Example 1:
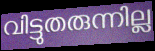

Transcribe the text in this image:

വിട്ടുതരുന്നില്ല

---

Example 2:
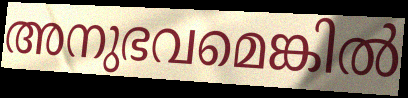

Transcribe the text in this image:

അനുഭവമെങ്കിൽ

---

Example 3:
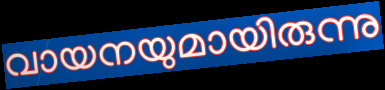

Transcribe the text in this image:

വായനയുമായിരുന്നു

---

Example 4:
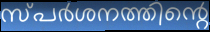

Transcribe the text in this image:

സ്പർശനത്തിന്റെ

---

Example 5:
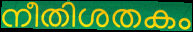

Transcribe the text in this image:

നീതിശതകം